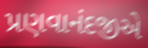
પ્રણવાનંદજીએ